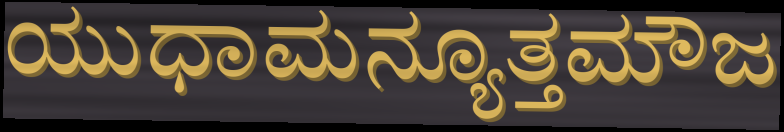
ಯುಧಾಮನ್ಯೂತ್ತಮೌಜ